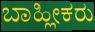
ಬಾಹ್ಲೀಕರು